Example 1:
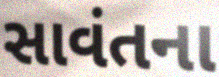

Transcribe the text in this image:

સાવંતના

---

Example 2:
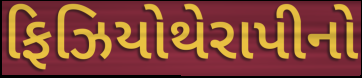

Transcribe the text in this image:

ફિઝિયોથેરાપીનો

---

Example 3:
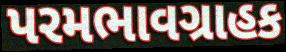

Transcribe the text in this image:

પરમભાવગ્રાહક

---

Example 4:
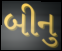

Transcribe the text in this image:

બીનુ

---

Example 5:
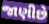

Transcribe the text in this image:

જાણીછે